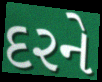
દરને